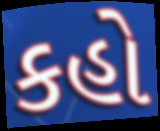
કહો